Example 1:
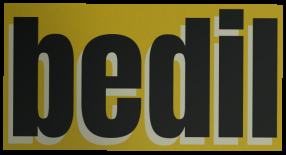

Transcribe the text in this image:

bedil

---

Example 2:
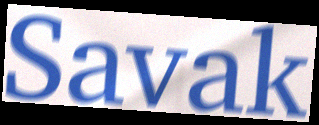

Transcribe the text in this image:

Savak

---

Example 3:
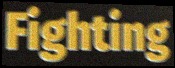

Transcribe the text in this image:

Fighting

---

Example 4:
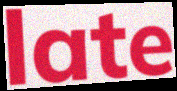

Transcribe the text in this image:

late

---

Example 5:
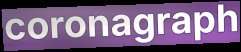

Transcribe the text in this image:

coronagraph